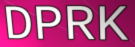
DPRK